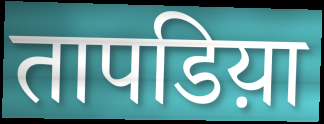
तापडिय़ा